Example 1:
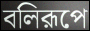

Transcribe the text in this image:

বলিরূপে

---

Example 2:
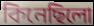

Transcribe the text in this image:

কিনেছিলো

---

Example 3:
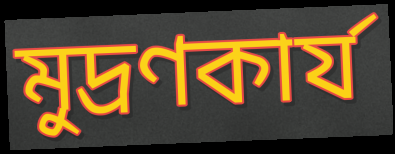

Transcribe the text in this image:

মুদ্রণকার্য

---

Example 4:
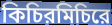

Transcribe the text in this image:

কিচিরমিচিরে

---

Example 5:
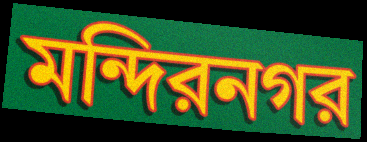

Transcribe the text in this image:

মন্দিরনগর